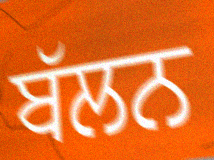
ਬੱਲਨ